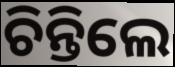
ଚିନ୍ତିଲେ